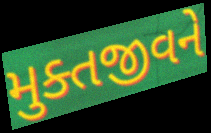
મુક્તજીવને